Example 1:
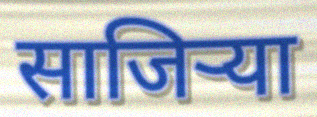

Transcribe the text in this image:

साजिर्‍या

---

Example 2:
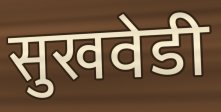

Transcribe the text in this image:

सुखवेडी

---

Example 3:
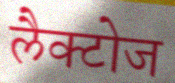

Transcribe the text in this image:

लैक्टोज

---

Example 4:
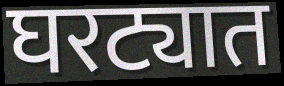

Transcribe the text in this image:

घरट्यात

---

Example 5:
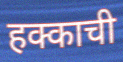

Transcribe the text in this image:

हक्काची